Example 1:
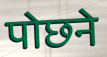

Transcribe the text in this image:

पोछने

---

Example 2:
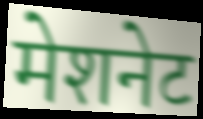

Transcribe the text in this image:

मेशनेट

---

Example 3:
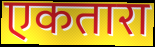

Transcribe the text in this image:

एकतारा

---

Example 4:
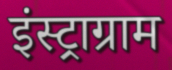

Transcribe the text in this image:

इंस्ट्राग्राम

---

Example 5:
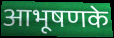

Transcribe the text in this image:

आभूषणके